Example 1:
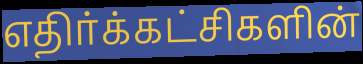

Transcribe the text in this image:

எதிர்க்கட்சிகளின்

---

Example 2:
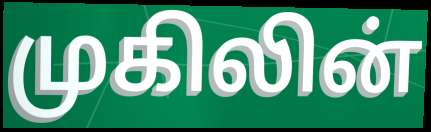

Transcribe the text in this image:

முகிலின்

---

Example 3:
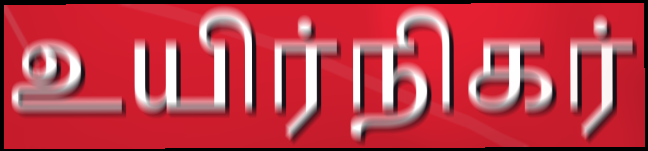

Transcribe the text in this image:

உயிர்நிகர்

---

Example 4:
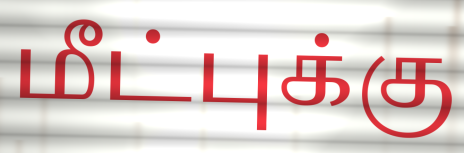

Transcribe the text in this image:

மீட்புக்கு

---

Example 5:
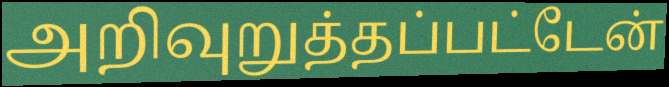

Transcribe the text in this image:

அறிவுறுத்தப்பட்டேன்